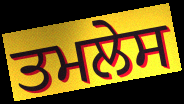
ਤਮਲੇਸ